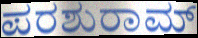
ಪರಶುರಾಮ್